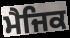
ਮੈਜਿਕ